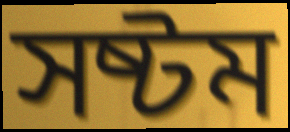
সষ্টম